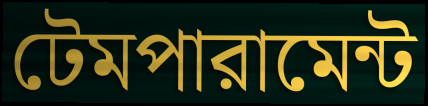
টেমপারামেন্ট